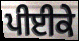
ਪੀਈਕੇ